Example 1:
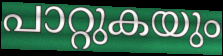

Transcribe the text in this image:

പാറ്റുകയും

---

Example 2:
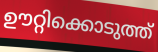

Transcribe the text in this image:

ഊറ്റിക്കൊടുത്ത്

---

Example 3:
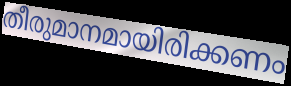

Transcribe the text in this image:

തീരുമാനമായിരിക്കണം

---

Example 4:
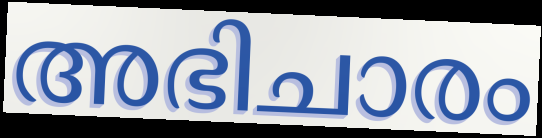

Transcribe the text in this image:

അഭിചാരം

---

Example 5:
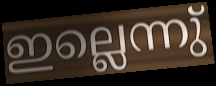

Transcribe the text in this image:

ഇല്ലെന്നു്